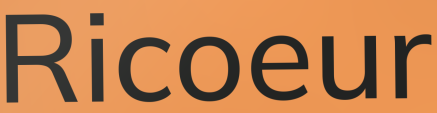
Ricoeur